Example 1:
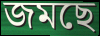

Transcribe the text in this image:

জমছে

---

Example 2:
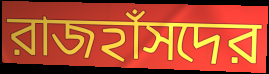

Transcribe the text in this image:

রাজহাঁসদের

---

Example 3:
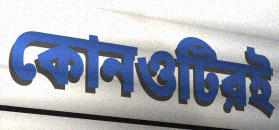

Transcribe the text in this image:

কোনওটিরই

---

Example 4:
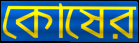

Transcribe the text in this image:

কোষের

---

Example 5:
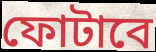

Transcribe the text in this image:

ফোটাবে